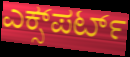
ಎಕ್ಸ್‌ಪರ್ಟ್